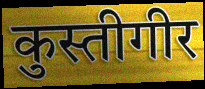
कुस्तीगीर